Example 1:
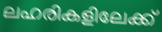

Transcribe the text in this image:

ലഹരികളിലേക്ക്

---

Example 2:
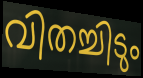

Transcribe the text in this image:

വിതച്ചിടും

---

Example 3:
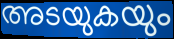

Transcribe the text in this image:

അടയുകയും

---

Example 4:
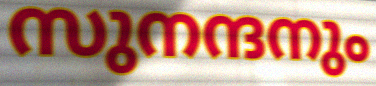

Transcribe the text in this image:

സുനന്ദനും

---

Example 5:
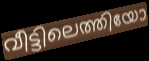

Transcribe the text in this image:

വീട്ടിലെത്തിയോ